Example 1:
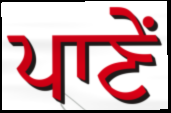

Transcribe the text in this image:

ਪਾਣੇਂ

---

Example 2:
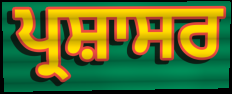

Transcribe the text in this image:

ਪ੍ਰਸ਼ਾਸਰ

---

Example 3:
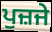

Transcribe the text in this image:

ਪੁਜ਼ਜੇ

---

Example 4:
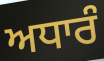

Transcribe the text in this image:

ਅਧਾਰੰ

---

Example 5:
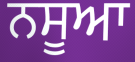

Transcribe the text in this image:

ਨਸੂਆ